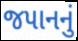
જપાનનું